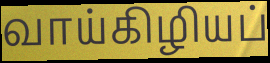
வாய்கிழியப்